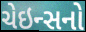
ચેઇન્સનો